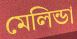
মেলিন্ডা